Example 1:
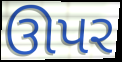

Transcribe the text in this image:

ઊપર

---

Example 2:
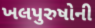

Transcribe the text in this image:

ખલપુરુષોની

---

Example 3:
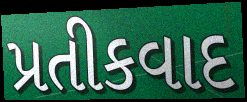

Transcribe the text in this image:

પ્રતીકવાદ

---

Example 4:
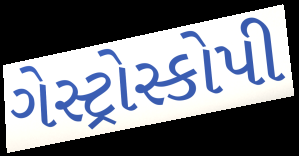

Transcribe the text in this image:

ગેસ્ટ્રોસ્કોપી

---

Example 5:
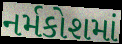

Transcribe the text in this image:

નર્મકોશમાં